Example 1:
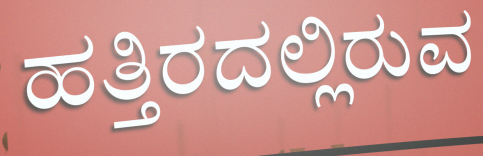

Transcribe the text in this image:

ಹತ್ತಿರದಲ್ಲಿರುವ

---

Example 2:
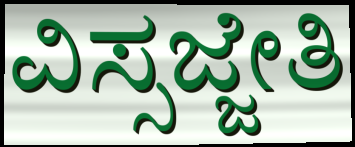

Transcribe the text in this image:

ವಿಸ್ಸಜ್ಜೇತಿ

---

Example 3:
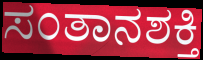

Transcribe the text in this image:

ಸಂತಾನಶಕ್ತಿ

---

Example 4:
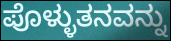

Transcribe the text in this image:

ಪೊಳ್ಳುತನವನ್ನು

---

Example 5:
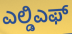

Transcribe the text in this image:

ಎಲ್ಡಿಎಫ್